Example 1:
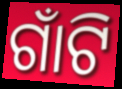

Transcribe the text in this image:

ଗାଁଟି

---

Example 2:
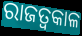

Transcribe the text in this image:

ରାଜତ୍ଵକାଳ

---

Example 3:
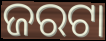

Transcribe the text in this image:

ଜରଟା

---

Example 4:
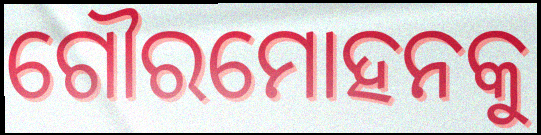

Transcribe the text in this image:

ଗୌରମୋହନକୁ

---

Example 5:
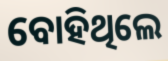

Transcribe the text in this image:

ବୋହିଥିଲେ